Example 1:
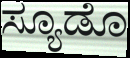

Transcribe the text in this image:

ಸ್ಯೂಡೊ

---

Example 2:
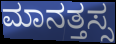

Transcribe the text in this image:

ಮಾನತ್ತಸ್ಸ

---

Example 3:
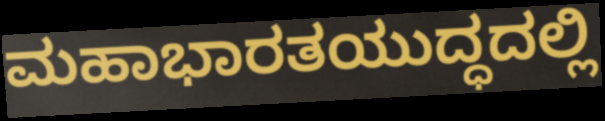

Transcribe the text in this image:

ಮಹಾಭಾರತಯುದ್ಧದಲ್ಲಿ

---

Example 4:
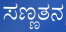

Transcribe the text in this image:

ಸಣ್ಣತನ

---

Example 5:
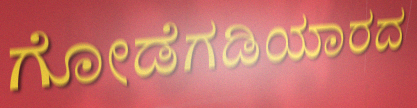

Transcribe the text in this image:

ಗೋಡೆಗಡಿಯಾರದ